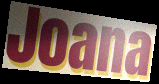
Joana